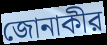
জোনাকীর